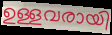
ഉള്ളവരായി